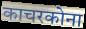
काचरकोना